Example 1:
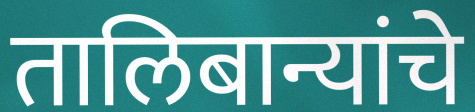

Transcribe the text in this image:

तालिबान्यांचे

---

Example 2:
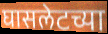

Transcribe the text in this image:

घासलेटच्या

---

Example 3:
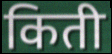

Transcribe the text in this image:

किती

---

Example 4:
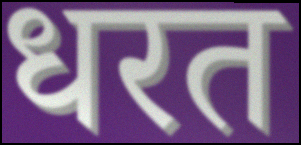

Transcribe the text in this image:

धरत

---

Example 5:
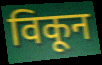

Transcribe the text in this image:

विकून